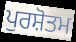
ਪੁਰਸ਼ੋਤਮ